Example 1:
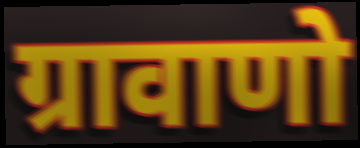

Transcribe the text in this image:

ग्रावाणो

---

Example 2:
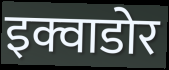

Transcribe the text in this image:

इक्‍वाडोर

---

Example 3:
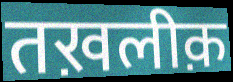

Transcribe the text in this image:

तख़लीक़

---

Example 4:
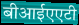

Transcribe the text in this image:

बीआईएएटी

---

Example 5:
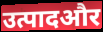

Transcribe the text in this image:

उत्पादऔर